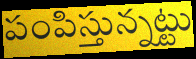
పంపిస్తున్నట్టు